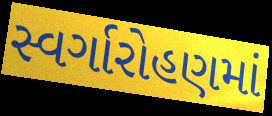
સ્વર્ગારોહણમાં